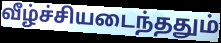
வீழ்ச்சியடைந்ததும்